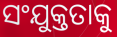
ସଂଯୁକ୍ତତାକୁ